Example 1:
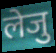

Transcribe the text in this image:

लेजु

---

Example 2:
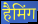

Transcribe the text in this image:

हैमिंग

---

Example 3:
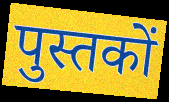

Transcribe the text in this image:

पुस्तकों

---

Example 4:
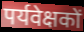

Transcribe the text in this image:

पर्यवेक्षकों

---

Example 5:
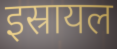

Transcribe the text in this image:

इस्रायल